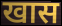
खास